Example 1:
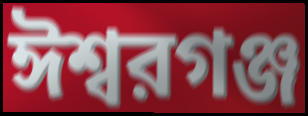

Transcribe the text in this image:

ঈশ্বরগঞ্জ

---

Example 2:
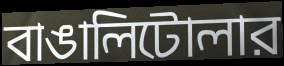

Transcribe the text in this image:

বাঙালিটোলার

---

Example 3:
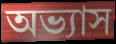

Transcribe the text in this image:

অভ্যাস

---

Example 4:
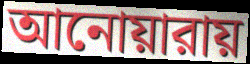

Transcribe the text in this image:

আনোয়ারায়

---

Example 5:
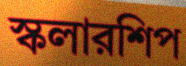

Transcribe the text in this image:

স্কলারশিপ